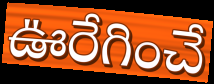
ఊరేగించే